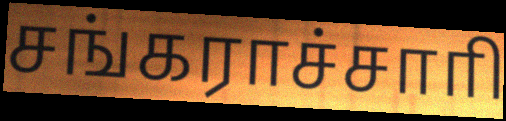
சங்கராச்சாரி